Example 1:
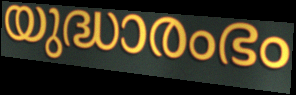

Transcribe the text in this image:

യുദ്ധാരംഭം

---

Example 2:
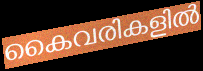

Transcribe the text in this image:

കൈവരികളിൽ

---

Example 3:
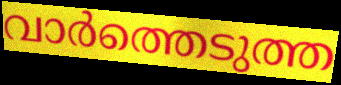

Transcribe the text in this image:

വാർത്തെടുത്ത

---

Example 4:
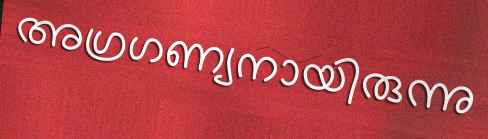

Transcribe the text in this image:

അഗ്രഗണ്യനായിരുന്നു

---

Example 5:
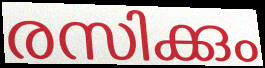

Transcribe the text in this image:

രസിക്കും